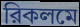
রিকলমে